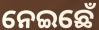
ନେଇଛେଁ